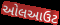
ઓલઆઉટ